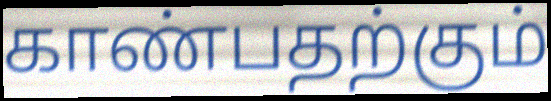
காண்பதற்கும்